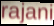
rajani